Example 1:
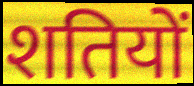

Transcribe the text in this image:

शतियों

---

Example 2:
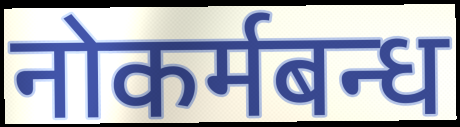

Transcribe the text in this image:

नोकर्मबन्ध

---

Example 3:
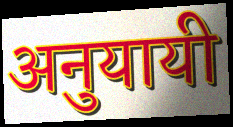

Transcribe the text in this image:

अनुयायी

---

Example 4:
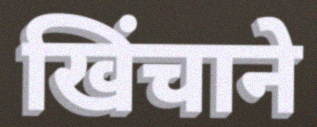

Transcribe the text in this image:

खिंचाने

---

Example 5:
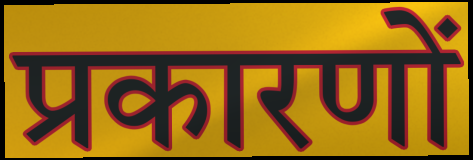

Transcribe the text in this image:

प्रकारणों